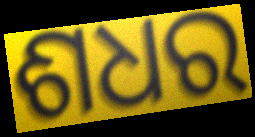
ଶଧର